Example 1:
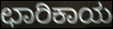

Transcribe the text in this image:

ಛಾರಿಕಾಯ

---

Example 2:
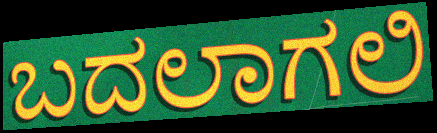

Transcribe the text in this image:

ಬದಲಾಗಲಿ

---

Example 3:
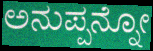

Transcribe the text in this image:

ಅನುಪ್ಪನ್ನೋ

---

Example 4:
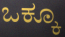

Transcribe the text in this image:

ಒಕ್ಕೂ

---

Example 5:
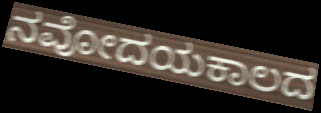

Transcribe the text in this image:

ನವೋದಯಕಾಲದ